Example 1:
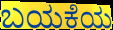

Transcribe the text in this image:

ಬಯಕೆಯ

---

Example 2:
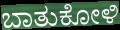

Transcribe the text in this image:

ಬಾತುಕೋಳಿ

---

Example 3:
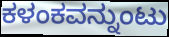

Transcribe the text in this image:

ಕಳಂಕವನ್ನುಂಟು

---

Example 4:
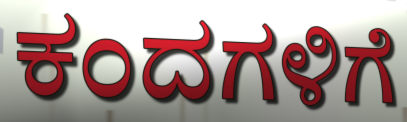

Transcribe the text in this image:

ಕಂದಗಳಿಗೆ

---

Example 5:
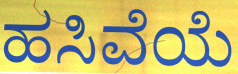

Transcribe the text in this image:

ಹಸಿವೆಯೆ